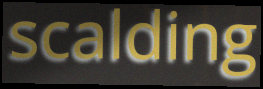
scalding